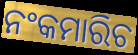
ନଂକମାରିଚ